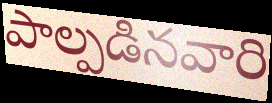
పాల్పడినవారి